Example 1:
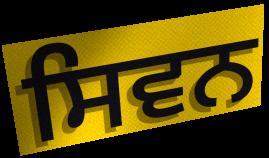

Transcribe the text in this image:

ਸਿਵਨ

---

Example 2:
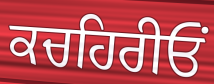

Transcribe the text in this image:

ਕਚਹਿਰੀਓਂ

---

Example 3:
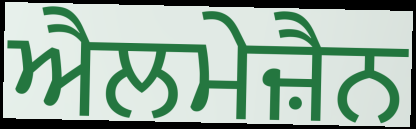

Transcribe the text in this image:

ਐਲਮੇਜ਼ੈਨ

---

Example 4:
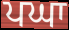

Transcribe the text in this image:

ਪਘਾ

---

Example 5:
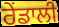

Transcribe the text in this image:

ਰੇਂਡਾਲੀ